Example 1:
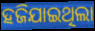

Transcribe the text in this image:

ହଜିଯାଇଥିଲା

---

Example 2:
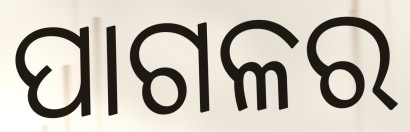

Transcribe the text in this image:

ପାଗଳର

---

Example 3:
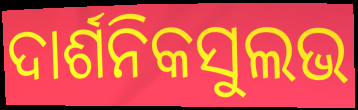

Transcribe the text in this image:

ଦାର୍ଶନିକସୁଲଭ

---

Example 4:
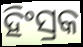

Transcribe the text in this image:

ହିଂସ୍ରକ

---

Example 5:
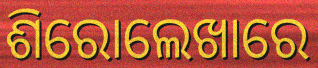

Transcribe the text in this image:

ଶିରୋଲେଖାରେ